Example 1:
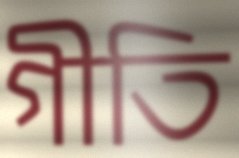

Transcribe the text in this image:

গীতি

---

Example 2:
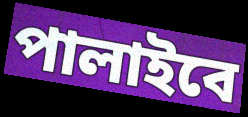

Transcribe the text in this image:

পালাইবে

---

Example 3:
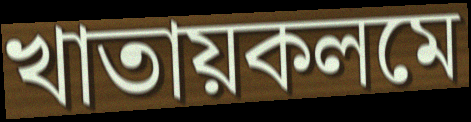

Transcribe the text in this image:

খাতায়কলমে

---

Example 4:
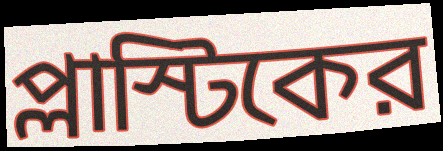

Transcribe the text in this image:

প্লাস্টিকের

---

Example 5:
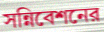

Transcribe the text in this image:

সন্নিবেশনের